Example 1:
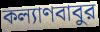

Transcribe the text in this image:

কল্যাণবাবুর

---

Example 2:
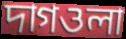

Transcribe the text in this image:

দাগওলা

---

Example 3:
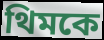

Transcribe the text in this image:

থিমকে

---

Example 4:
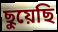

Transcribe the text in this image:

ছুয়েছি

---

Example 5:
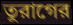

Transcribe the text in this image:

তুরাগের